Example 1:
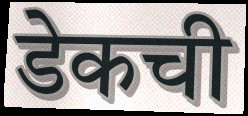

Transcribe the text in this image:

डेकची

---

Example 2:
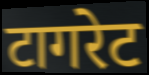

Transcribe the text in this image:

टागरेट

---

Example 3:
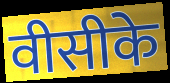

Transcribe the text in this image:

वीसीके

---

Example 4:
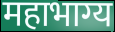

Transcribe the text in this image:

महाभाग्य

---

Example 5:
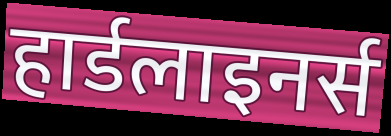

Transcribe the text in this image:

हार्डलाइनर्स